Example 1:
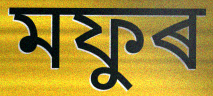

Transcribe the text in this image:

মফুৰ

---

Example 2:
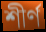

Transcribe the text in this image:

শীৰ্ণ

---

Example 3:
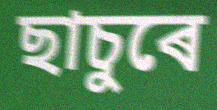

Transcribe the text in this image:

ছাচুৰে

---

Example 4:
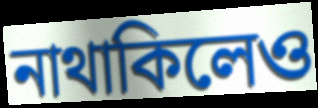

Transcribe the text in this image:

নাথাকিলেও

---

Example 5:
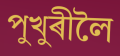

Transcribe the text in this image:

পুখুৰীলৈ